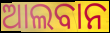
ଆଲବାନ